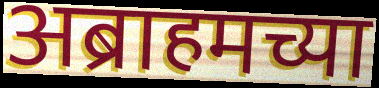
अब्राहमच्या